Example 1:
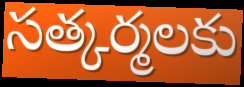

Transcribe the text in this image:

సత్కర్మలకు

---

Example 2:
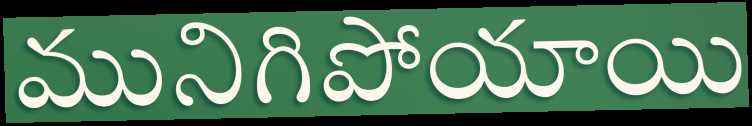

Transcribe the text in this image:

మునిగిపోయాయి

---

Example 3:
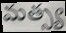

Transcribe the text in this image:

మత్స్య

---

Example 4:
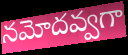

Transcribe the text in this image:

నమోదవ్వగా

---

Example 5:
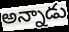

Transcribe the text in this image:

అన్నాడు